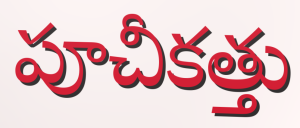
పూచీకత్తు